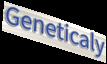
Geneticaly